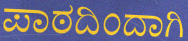
ಪಾಠದಿಂದಾಗಿ